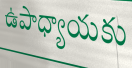
ఉపాధ్యాయకు